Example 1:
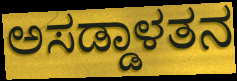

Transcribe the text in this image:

ಅಸಡ್ಡಾಳತನ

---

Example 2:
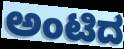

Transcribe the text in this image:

ಅಂಟಿದ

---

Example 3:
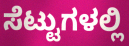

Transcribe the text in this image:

ಸೆಟ್ಟುಗಳಲ್ಲಿ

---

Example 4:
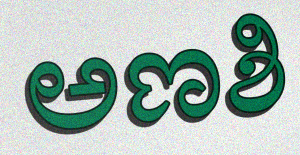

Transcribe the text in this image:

ಅಣಶಿ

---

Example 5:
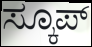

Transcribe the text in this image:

ಸ್ಕೂಪ್